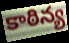
కాఠిన్య